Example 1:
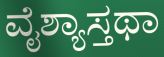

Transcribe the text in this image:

ವೈಶ್ಯಾಸ್ತಥಾ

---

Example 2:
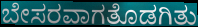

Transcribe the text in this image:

ಬೇಸರವಾಗತೊಡಗಿತು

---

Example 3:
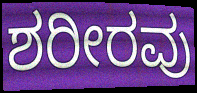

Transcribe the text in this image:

ಶರೀರವು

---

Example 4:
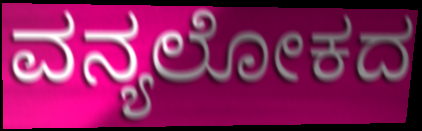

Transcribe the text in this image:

ವನ್ಯಲೋಕದ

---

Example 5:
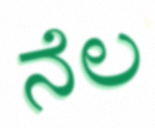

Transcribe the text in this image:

ನೆಲ